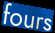
fours